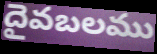
దైవబలము